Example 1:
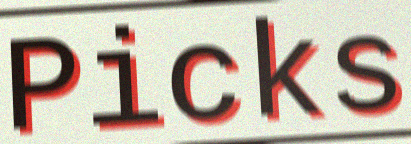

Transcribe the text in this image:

Picks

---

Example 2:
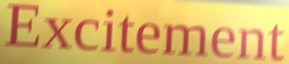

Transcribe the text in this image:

Excitement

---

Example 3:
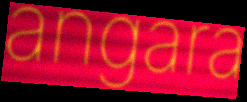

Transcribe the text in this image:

angara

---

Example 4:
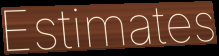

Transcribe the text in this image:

Estimates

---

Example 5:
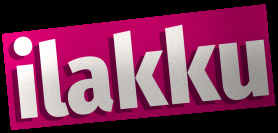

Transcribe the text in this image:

ilakku